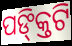
ପଙ୍କ୍ତିଟି